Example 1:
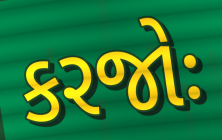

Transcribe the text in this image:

કરજોઃ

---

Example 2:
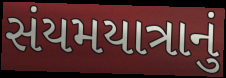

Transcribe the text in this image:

સંયમયાત્રાનું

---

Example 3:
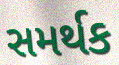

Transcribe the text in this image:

સમર્થક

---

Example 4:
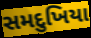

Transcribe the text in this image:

સમદુખિયા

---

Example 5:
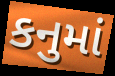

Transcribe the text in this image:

કનુમાં